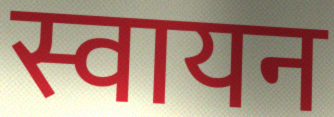
स्वायन